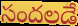
సందలడే